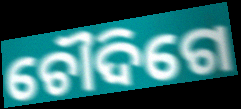
ଚୌଦିଗେ